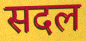
सदल